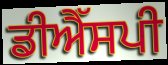
ਡੀਐੱਸਪੀ